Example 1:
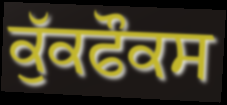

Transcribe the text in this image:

ਕੁੱਕਫੌਕਸ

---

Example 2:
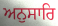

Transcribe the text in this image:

ਅਨੁਸਾਰਿ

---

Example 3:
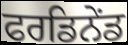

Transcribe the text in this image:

ਫਰਡਿਨੇਂਡ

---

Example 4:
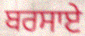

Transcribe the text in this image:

ਬਰਸਾਏ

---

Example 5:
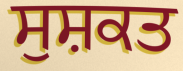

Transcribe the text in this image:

ਸੁਸ਼ਕਤ